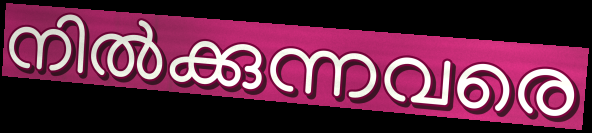
നിൽക്കുന്നവരെ